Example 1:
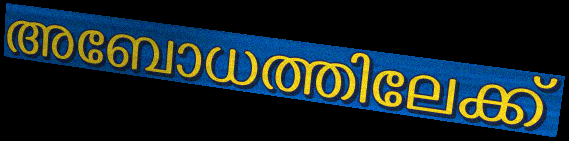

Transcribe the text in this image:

അബോധത്തിലേക്ക്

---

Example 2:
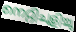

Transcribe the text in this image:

നെറ്റിചുളിച്ചു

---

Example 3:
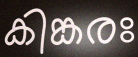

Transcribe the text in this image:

കിങ്കരഃ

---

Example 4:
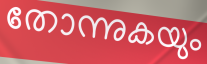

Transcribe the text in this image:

തോന്നുകയും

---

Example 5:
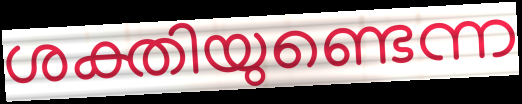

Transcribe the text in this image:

ശക്തിയുണ്ടെന്ന